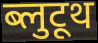
ब्लुटूथ